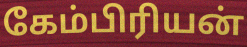
கேம்பிரியன்